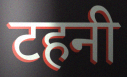
टहनी